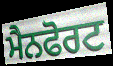
ਮੈਨਫੋਰਟ